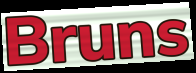
Bruns